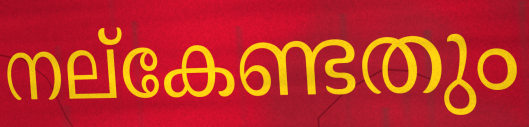
നല്കേണ്ടതും